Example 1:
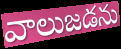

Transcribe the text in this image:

వాలుజడను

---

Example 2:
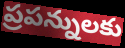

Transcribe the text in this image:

ప్రపన్నులకు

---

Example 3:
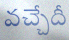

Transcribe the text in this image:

వచ్చేదీ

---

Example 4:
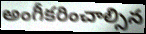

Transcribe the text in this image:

అంగీకరించాల్సిన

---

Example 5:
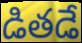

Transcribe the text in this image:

డితడే